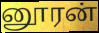
னூரன்